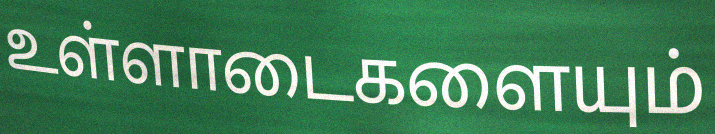
உள்ளாடைகளையும்